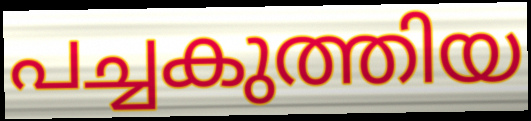
പച്ചകുത്തിയ